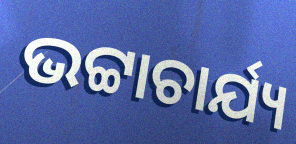
ଭଟ୍ଟାଚାର୍ଯ୍ୟ